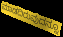
ಮಾಡದಿರುವುದನ್ನೂ